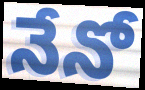
నేనో